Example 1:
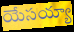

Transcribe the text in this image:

యేసయ్యా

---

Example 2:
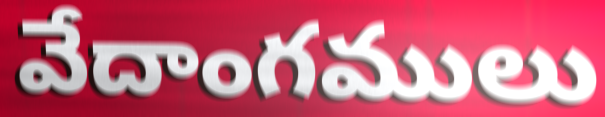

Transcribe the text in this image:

వేదాంగములు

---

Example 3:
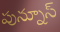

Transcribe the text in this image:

పున్నూస్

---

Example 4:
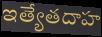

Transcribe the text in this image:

ఇత్యేతదాహ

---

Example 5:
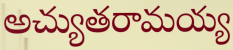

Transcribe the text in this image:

అచ్యుతరామయ్య